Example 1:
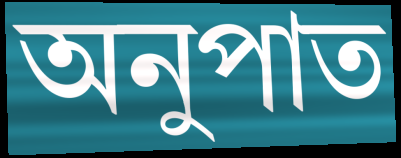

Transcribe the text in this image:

অনুপাত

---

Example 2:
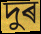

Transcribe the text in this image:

দুৰ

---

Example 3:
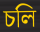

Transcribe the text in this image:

চলি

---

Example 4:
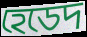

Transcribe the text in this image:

হেডেদ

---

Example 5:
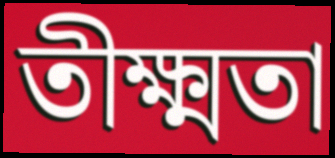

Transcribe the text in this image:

তীক্ষ্মতা